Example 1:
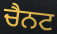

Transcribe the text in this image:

ਚੈਨਟ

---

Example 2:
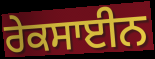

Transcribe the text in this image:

ਰੇਕਸਾਈਨ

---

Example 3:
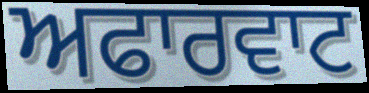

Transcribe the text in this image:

ਅਫਾਰਵਾਟ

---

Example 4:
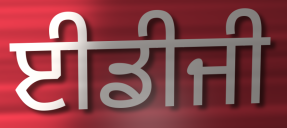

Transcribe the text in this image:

ਈਡੀਜੀ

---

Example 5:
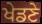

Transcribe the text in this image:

ਖੇਡਣੇ